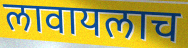
लावायलाच